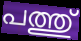
പത്തു്